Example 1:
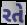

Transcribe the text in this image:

રતે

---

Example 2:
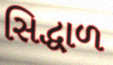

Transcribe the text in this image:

સિદ્ધાળ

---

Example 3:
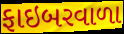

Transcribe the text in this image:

ફાઇબરવાળા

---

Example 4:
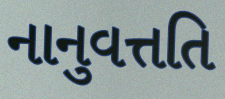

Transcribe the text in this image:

નાનુવત્તતિ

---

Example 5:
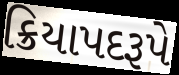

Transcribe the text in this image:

ક્રિયાપદરૂપે